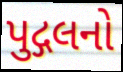
પુદ્ગલનો